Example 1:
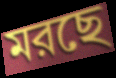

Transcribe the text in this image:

মরছে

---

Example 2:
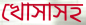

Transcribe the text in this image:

খোসাসহ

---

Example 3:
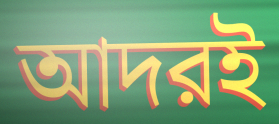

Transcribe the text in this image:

আদরই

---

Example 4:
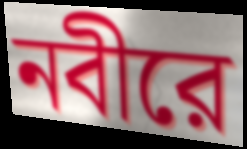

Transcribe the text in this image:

নবীরে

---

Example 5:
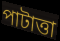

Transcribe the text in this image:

পাটাত্তা